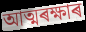
আত্মৰক্ষাৰ